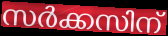
സർക്കസിന്